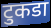
टुकडा